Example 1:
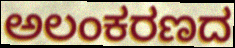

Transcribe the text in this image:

ಅಲಂಕರಣದ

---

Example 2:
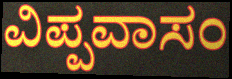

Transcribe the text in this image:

ವಿಪ್ಪವಾಸಂ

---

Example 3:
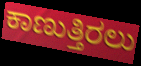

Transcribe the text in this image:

ಕಾಣುತ್ತಿರಲು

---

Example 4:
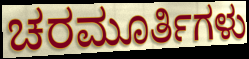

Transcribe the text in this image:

ಚರಮೂರ್ತಿಗಳು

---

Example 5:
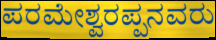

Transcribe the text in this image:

ಪರಮೇಶ್ವರಪ್ಪನವರು